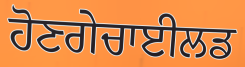
ਹੋਣਗੇਚਾਈਲਡ